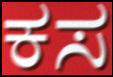
ಕಸ